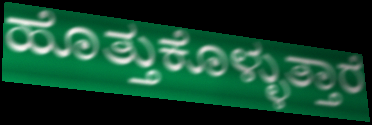
ಹೊತ್ತುಕೊಳ್ಳುತ್ತಾರೆ